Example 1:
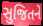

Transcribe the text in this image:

સુજિતને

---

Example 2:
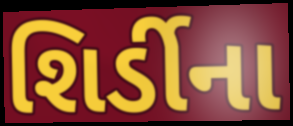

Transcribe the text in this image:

શિર્ડીના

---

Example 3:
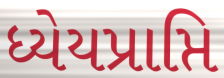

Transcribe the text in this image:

ધ્યેયપ્રાપ્તિ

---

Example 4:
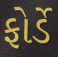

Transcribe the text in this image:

ફોર્ડે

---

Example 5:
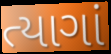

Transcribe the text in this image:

ત્યાગાં